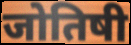
जोतिषी